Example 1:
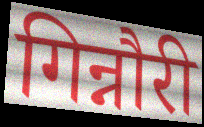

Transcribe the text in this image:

गिन्नौरी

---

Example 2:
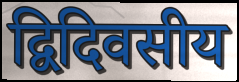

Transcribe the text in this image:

द्विदिवसीय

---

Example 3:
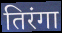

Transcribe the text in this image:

तिरंगा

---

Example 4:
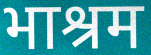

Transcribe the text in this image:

भाश्रम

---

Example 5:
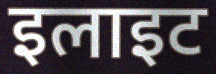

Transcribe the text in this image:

इलाइट